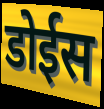
डोईस